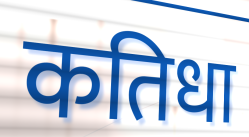
कतिधा